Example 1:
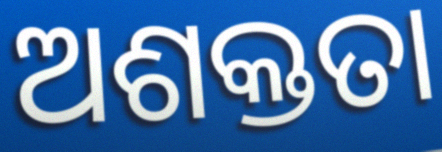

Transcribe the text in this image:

ଅଶକ୍ତତା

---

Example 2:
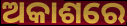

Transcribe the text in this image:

ଅକାଶରେ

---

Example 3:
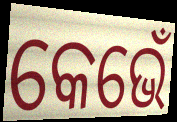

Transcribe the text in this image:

କେଭେଁ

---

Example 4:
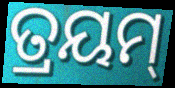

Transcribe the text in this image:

ତ୍ରୟମ୍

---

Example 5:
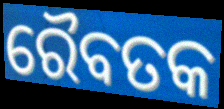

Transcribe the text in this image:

ରୈବତକ